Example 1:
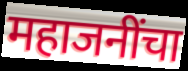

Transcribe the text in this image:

महाजनींचा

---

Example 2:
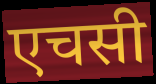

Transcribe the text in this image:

एचसी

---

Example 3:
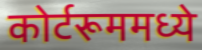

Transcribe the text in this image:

कोर्टरूममध्ये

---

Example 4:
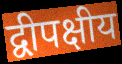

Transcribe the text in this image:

द्वीपक्षीय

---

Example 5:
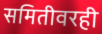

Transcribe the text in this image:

समितीवरही